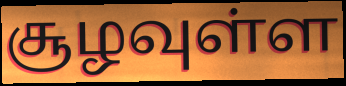
சூழவுள்ள